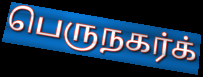
பெருநகர்க்